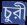
চুরী